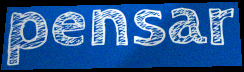
pensar